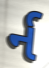
ર્ન